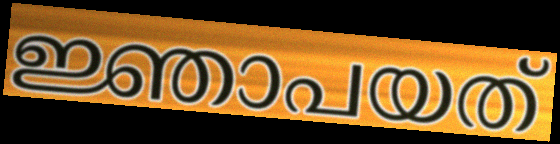
ജ്ഞാപയത്